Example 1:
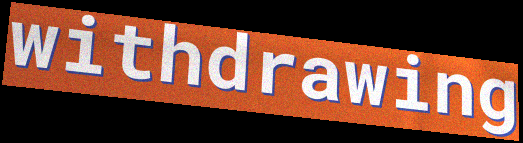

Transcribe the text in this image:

withdrawing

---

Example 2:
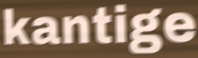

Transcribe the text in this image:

kantige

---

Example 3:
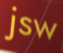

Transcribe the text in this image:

jsw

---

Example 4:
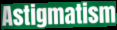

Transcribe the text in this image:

Astigmatism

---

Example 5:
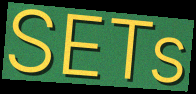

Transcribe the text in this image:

SETs